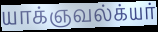
யாக்ஞவல்க்யர்